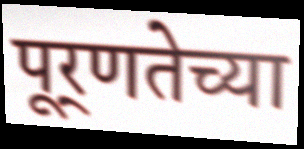
पूर्णतेच्या